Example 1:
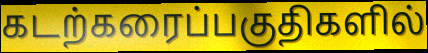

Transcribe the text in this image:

கடற்கரைப்பகுதிகளில்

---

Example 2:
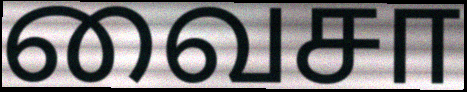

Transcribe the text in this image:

வைசா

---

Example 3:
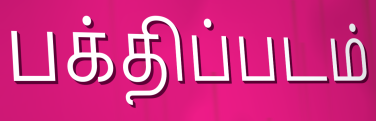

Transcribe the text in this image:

பக்திப்படம்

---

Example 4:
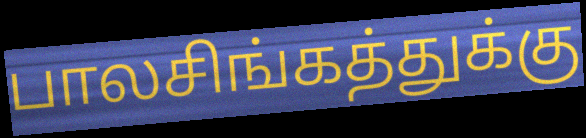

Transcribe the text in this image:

பாலசிங்கத்துக்கு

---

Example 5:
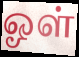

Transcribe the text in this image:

ஓள்